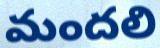
మందలి